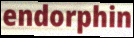
endorphin